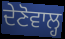
ਦੇਣੋਵਾਲ੍ਹ